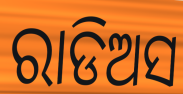
ରାଡିଅସ